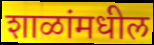
शाळांमधील